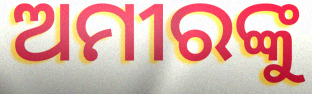
ଅମୀରଙ୍କୁ